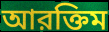
আরক্তিম